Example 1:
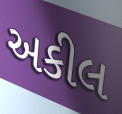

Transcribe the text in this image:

અકીલ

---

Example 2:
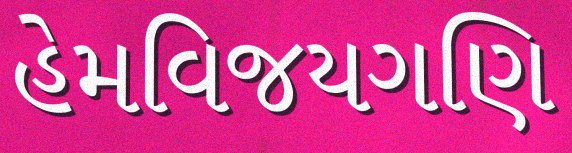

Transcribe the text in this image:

હેમવિજયગણિ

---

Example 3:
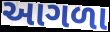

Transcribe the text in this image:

આગળા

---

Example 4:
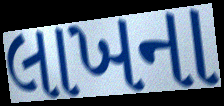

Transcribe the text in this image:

લાખના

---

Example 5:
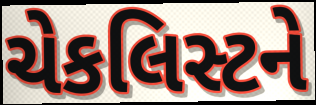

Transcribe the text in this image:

ચેકલિસ્ટને